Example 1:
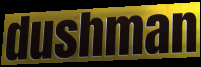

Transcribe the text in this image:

dushman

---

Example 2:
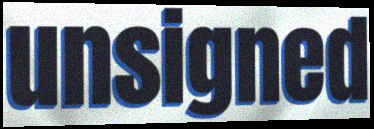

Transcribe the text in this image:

unsigned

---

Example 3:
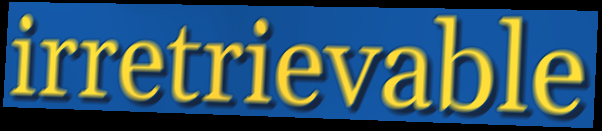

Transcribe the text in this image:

irretrievable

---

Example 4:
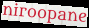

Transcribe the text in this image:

niroopane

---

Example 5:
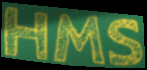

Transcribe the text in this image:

HMS